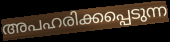
അപഹരിക്കപ്പെടുന്ന